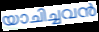
യാചിച്ചവൻ